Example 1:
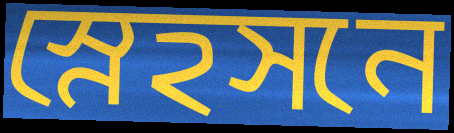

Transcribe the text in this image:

স্নেহসনে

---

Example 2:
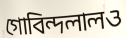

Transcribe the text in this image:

গোবিন্দলালও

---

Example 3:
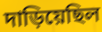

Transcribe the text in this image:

দাড়িয়েছিল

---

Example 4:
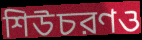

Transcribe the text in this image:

শিউচরণও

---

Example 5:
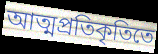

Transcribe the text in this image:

আত্মপ্রতিকৃতিতে